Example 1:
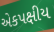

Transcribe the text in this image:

એકપક્ષીય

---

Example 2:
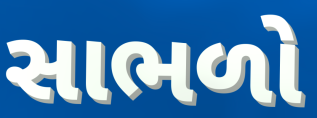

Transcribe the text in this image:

સાભળો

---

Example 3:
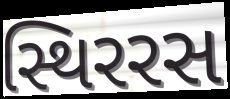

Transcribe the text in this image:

સ્થિરરસ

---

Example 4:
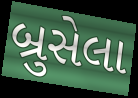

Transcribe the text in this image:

બ્રુસેલા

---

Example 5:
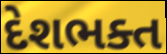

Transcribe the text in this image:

દેશભક્ત